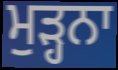
ਮੁੜ੍ਹਨਾ